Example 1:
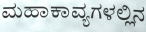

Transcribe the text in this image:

ಮಹಾಕಾವ್ಯಗಳಲ್ಲಿನ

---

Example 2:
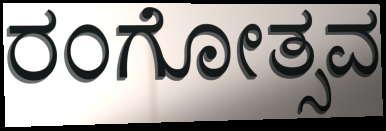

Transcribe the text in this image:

ರಂಗೋತ್ಸವ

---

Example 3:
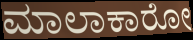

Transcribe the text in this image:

ಮಾಲಾಕಾರೋ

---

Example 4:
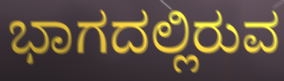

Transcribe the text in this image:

ಭಾಗದಲ್ಲಿರುವ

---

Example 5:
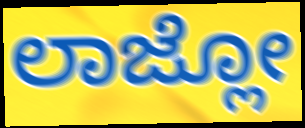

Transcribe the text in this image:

ಲಾಜ್ಲೋ